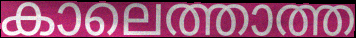
കാലെത്താത്ത